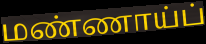
மண்ணாய்ப்